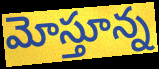
మోస్తూన్న